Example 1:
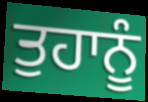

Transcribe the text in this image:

ਤੁਹਾਨੂੰ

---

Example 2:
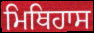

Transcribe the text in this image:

ਮਿਥਿਹਾਸ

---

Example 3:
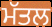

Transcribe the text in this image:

ਮੱਤਲ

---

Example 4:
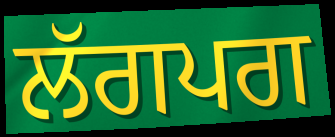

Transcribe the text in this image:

ਲੱਗਪਗ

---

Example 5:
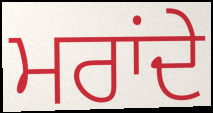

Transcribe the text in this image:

ਮਰਾਂਦੇ